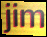
jim